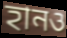
হানও